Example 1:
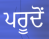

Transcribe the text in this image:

ਪਰੂਦੋਂ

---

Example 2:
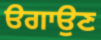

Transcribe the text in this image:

ੳਗਾਉਣ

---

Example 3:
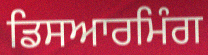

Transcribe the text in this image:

ਡਿਸਆਰਮਿੰਗ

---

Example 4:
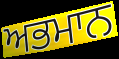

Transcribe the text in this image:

ਅਭਮਾਨ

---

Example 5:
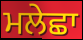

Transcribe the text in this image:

ਮਲੇਛਾ